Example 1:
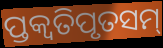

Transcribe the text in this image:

ପ୍ତକ୍ଵତିପୃତସମ୍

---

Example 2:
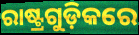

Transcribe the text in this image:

ରାଷ୍ଟ୍ରଗୁଡ଼ିକରେ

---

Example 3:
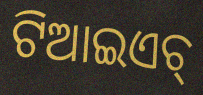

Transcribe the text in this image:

ଟିଆଇଏଚ୍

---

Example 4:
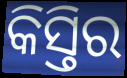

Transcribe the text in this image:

କିସ୍ତିର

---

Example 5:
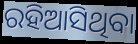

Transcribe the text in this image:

ରହିଆସିଥିବା